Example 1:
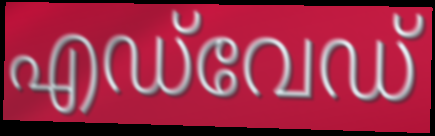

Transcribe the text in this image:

എഡ്‌വേഡ്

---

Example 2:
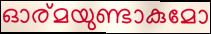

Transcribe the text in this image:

ഓര്മയുണ്ടാകുമോ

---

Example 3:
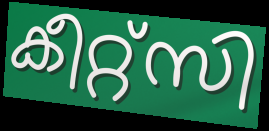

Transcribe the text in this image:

കീറ്റ്സി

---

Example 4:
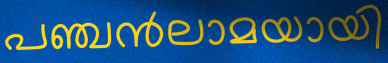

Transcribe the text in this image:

പഞ്ചൻലാമയായി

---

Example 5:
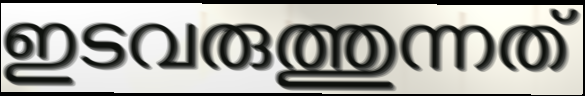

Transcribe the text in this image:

ഇടവരുത്തുന്നത്